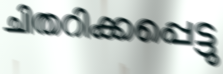
ചിതറിക്കപ്പെട്ടു